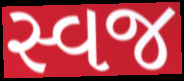
સ્વજ